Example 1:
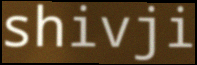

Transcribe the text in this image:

shivji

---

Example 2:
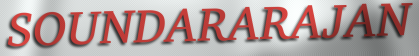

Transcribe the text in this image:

SOUNDARARAJAN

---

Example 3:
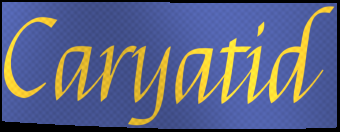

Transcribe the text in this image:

Caryatid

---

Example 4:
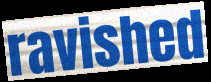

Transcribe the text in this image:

ravished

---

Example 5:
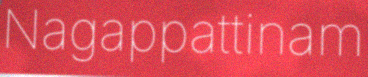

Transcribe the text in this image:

Nagappattinam